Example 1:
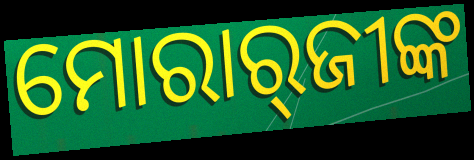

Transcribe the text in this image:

ମୋରାର୍‌ଜୀଙ୍କ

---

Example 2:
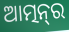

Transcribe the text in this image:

ଆତ୍ମନ୍‌ର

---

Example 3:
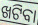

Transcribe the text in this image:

ଖଟିବା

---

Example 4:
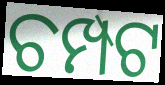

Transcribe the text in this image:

ଚମ୍ପଟ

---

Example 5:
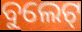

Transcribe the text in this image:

ବୁଲେଟ୍